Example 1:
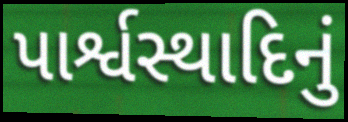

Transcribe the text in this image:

પાર્શ્વસ્થાદિનું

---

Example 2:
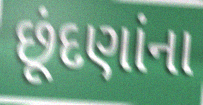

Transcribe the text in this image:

છૂંદણાંના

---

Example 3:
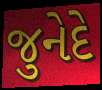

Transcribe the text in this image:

જુનેદે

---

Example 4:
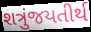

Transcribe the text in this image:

શત્રુંજયતીર્થ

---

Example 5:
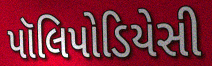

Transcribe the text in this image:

પૉલિપોડિયેસી